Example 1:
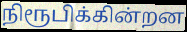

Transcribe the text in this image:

நிரூபிக்கின்றன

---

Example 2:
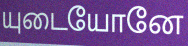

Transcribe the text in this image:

யுடையோனே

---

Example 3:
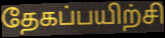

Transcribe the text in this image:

தேகப்பயிற்சி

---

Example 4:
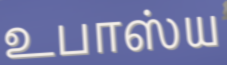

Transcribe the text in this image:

உபாஸ்ய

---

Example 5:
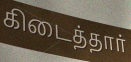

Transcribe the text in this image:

கிடைத்தார்